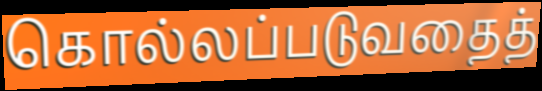
கொல்லப்படுவதைத்